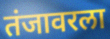
तंजावरला